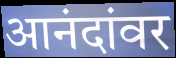
आनंदांवर